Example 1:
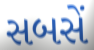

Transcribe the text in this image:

સબસેં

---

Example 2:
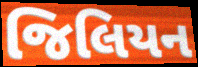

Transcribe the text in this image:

જિલિયન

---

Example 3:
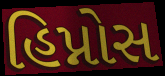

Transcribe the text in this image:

હિપ્નોસ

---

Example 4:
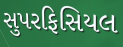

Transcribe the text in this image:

સુપરફિસિયલ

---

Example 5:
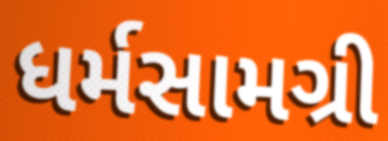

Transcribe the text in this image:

ધર્મસામગ્રી